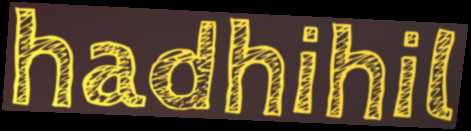
hadhihil